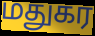
மதுகர